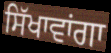
ਸਿੱਖਾਵਾਂਗਾ